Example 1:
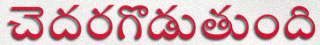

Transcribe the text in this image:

చెదరగొడుతుంది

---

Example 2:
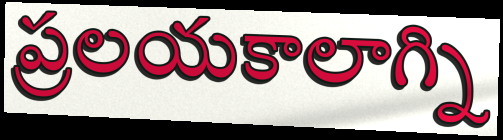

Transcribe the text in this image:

ప్రలయకాలాగ్ని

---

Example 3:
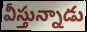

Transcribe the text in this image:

వీస్తున్నాడు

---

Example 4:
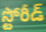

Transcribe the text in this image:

స్టోరీడ్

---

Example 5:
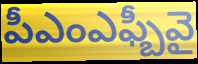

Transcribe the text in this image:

పీఎంఎఫ్బీవై